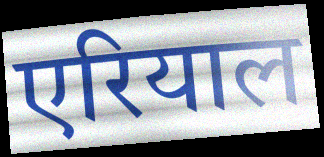
एरियाल